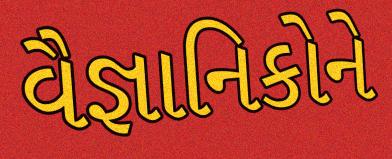
વૈજ્ઞાનિકોને